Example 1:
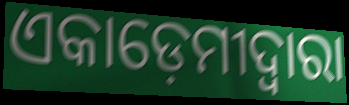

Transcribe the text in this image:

ଏକାଡ଼େମୀଦ୍ୱାରା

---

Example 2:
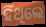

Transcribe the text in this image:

ହିଁଥିଲେ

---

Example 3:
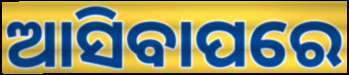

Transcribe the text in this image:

ଆସିବାପରେ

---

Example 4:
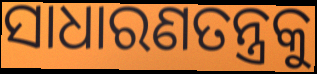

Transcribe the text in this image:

ସାଧାରଣତନ୍ତ୍ରକୁ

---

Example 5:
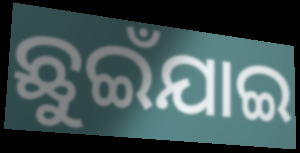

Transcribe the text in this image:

ଛୁଇଁଯାଇ